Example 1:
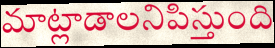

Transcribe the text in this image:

మాట్లాడాలనిపిస్తుంది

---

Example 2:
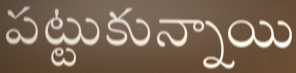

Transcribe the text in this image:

పట్టుకున్నాయి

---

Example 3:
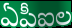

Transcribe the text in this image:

ఏపీఐల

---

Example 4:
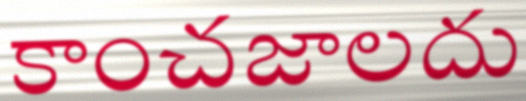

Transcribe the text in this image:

కాంచజాలదు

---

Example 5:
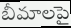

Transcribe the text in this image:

బీమాలపై